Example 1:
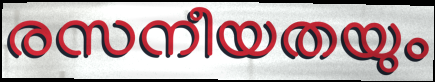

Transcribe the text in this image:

രസനീയതയും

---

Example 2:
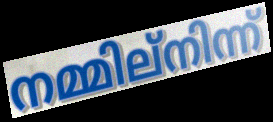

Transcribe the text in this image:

നമ്മില്നിന്ന്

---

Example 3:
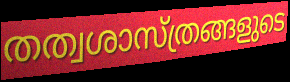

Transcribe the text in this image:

തത്വശാസ്ത്രങ്ങളുടെ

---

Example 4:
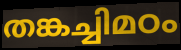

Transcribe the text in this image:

തങ്കച്ചിമഠം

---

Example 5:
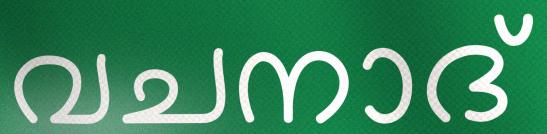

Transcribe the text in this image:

വചനാദ്